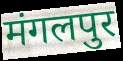
मंगलपुर